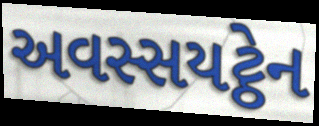
અવસ્સયટ્ઠેન